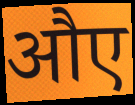
औए